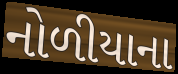
નોળીયાના